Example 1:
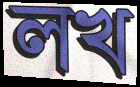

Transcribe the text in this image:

লখ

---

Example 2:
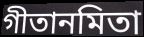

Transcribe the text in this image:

গীতানমিতা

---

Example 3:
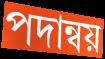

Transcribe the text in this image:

পদান্বয়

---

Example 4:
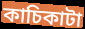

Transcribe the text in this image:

কাচিকাটা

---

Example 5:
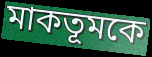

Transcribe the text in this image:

মাকতূমকে